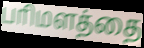
பரிமளத்தை